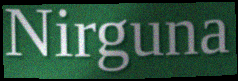
Nirguna